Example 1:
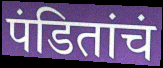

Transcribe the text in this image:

पंडितांचं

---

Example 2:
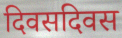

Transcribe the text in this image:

दिवसदिवस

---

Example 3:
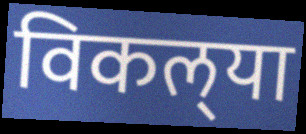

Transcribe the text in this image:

विकल्या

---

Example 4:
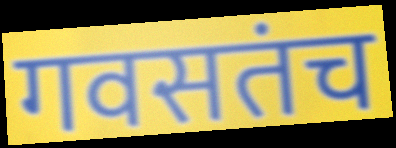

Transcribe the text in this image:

गवसतंच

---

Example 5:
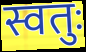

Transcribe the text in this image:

स्वतुः